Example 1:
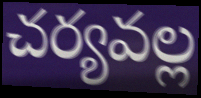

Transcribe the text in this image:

చర్యవల్ల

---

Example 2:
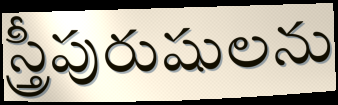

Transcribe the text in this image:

స్త్రీపురుషులను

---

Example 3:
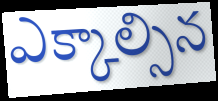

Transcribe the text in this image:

ఎక్కాల్సిన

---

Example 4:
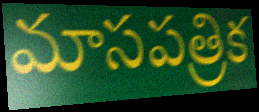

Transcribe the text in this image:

మాసపత్రిక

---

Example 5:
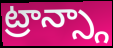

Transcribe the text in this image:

ట్రాన్స్గా